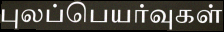
புலப்பெயர்வுகள்